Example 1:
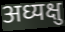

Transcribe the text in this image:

अध्यक्षु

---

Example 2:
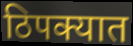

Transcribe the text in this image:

ठिपक्यात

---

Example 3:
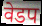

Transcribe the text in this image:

वेडप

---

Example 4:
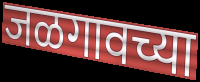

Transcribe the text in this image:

जळगावच्या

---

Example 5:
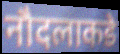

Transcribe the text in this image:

नौदलाकडे